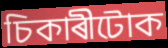
চিকাৰীটোক